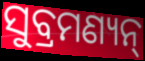
ସୁବ୍ରମଣ୍ୟନ୍